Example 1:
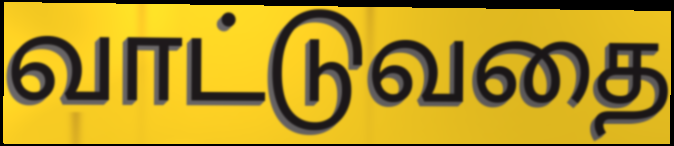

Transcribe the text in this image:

வாட்டுவதை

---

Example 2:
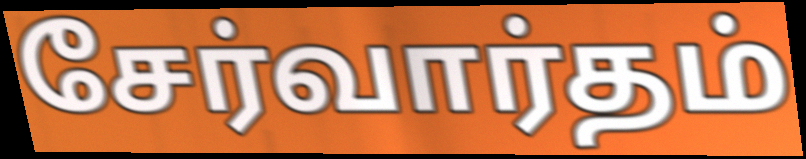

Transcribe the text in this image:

சேர்வார்தம்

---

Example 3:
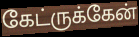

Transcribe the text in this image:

கேட்ருக்கேன்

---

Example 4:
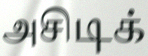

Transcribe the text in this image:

அசிடிக்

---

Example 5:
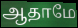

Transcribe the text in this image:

ஆதாமே